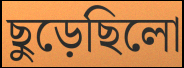
ছুড়েছিলো